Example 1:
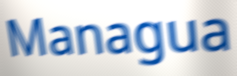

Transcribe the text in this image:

Managua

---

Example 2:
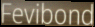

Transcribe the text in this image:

Fevibond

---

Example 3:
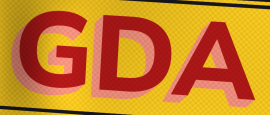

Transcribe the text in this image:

GDA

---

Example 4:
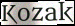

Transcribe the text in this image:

Kozak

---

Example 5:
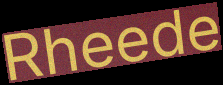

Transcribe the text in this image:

Rheede